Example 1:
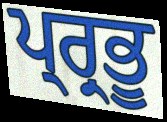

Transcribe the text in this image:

ਪ੍ਰ੍ਰਭੂ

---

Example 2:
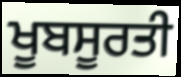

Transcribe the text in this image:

ਖੂਬਸੂਰਤੀ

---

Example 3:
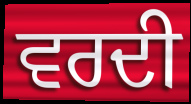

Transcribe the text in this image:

ਵਰਦੀ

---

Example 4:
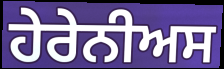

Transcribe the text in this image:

ਹੇਰੇਨੀਅਸ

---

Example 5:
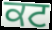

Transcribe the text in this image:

ਕਟ